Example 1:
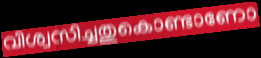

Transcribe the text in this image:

വിശ്വസിച്ചതുകൊണ്ടാണോ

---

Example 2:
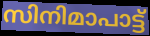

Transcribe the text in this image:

സിനിമാപാട്ട്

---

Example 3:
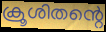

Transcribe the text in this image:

ക്രൂശിതന്റെ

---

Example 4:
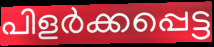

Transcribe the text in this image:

പിളർക്കപ്പെട്ട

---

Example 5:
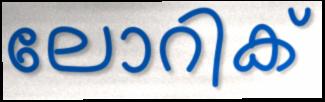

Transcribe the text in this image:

ലോറിക്